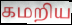
கமறிய